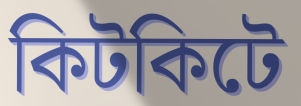
কিটকিটে